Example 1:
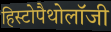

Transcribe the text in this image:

हिस्टोपैथोलॉजी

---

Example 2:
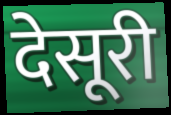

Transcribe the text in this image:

देसूरी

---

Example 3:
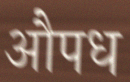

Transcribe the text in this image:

औपध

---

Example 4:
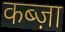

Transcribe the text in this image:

कब्ज़ा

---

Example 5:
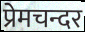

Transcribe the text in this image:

प्रेमचन्दर